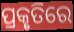
ପ୍ରକୃତିରେ